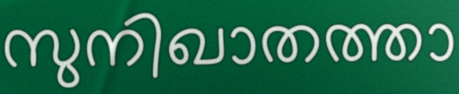
സുനിഖാതത്താ